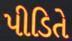
પીડિતે